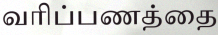
வரிப்பணத்தை